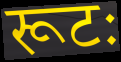
रूटः